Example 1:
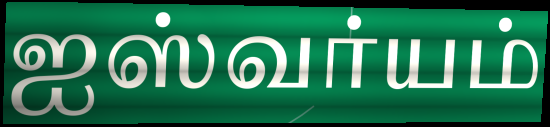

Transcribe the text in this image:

ஐஸ்வர்யம்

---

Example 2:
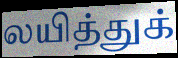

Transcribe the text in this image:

லயித்துக்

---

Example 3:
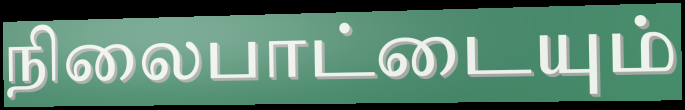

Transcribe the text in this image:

நிலைபாட்டையும்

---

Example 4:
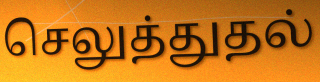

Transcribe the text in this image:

செலுத்துதல்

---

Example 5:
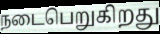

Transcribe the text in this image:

நடைபெறுகிறது